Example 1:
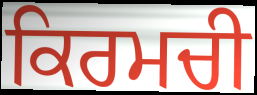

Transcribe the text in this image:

ਕਿਰਮਚੀ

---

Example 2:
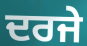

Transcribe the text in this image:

ਦਰਜੇ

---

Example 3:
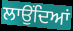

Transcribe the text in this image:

ਲਾਉਂਦਿਆਂ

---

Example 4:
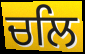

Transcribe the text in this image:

ਚਲਿ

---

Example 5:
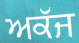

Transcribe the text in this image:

ਅਕੱਜ